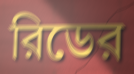
রিডের